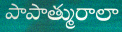
పాపాత్మురాలా